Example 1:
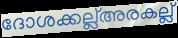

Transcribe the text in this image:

ദോശക്കല്ല്അരകല്ല്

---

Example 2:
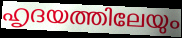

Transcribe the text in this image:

ഹൃദയത്തിലേയും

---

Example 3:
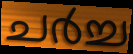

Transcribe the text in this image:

ചർച്ച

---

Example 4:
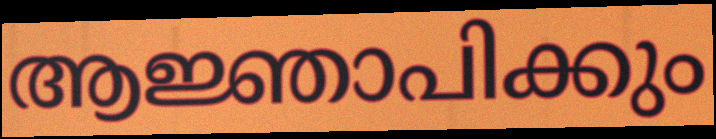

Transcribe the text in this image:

ആജ്ഞാപിക്കും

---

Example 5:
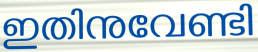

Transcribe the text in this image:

ഇതിനുവേണ്ടി